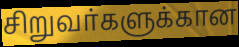
சிறுவர்களுக்கான